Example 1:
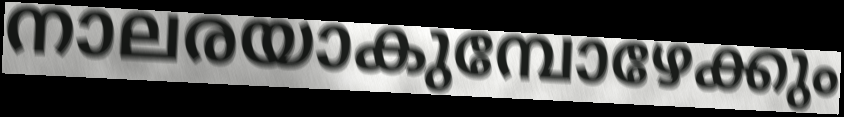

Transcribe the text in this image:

നാലരയാകുമ്പോഴേക്കും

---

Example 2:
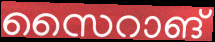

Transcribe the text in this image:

സൈറാങ്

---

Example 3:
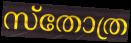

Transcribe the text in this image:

സ്തോത്ര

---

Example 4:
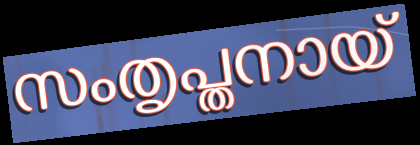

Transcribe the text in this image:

സംതൃപ്തനായ്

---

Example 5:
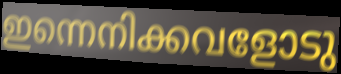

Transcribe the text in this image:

ഇന്നെനിക്കവളോടു